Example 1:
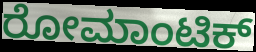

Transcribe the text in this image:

ರೋಮಾಂಟಿಕ್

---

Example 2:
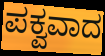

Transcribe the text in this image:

ಪಕ್ವವಾದ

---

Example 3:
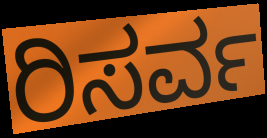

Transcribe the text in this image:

ರಿಸರ್ವ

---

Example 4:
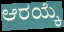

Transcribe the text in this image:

ಆರಯ್ಕೆ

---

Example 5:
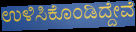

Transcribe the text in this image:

ಉಳಿಸಿಕೊಂಡಿದ್ದೇವೆ